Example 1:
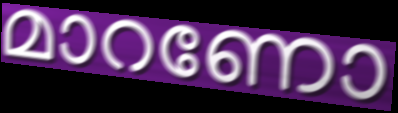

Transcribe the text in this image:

മാറണോ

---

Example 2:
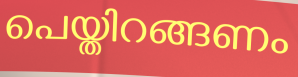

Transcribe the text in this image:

പെയ്തിറങ്ങണം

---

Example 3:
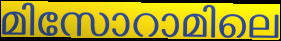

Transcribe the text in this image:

മിസോറാമിലെ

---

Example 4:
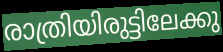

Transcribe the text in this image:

രാത്രിയിരുട്ടിലേക്കു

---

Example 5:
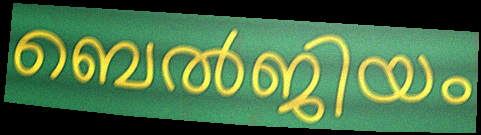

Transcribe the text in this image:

ബെൽജിയം